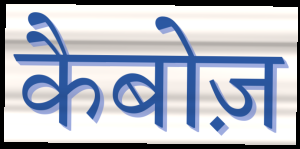
कैबोज़